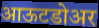
आऊटडोअर